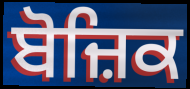
ਬੋਜ਼ਿਕ